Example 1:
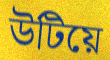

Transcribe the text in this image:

উটিয়ে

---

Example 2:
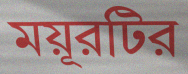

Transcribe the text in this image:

ময়ূরটির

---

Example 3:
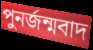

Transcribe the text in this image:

পুনর্জন্মবাদ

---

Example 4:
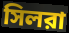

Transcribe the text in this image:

সিলরা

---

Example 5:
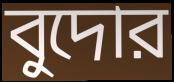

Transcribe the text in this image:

বুদোর